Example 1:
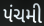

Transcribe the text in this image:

પંચમી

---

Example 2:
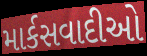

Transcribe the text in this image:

માર્કસવાદીઓ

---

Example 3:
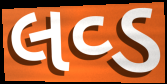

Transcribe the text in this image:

લવ્ડ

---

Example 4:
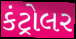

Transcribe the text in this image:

કંટ્રોલર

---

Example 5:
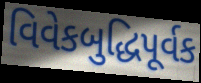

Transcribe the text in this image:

વિવેકબુદ્ધિપૂર્વક